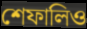
শেফালিও